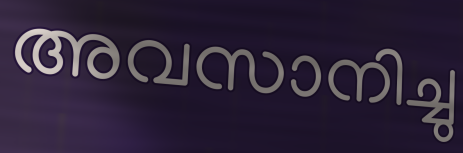
അവസാനിച്ചു